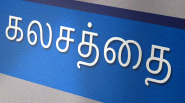
கலசத்தை